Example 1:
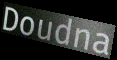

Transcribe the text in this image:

Doudna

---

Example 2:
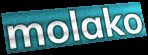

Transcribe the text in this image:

molako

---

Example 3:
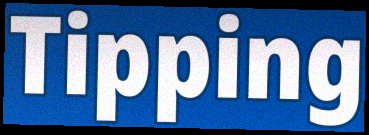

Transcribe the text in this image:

Tipping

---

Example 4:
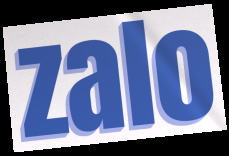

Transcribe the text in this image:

zalo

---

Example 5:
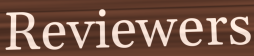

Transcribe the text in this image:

Reviewers